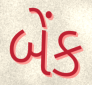
બેંક